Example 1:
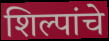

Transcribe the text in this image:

शिल्पांचे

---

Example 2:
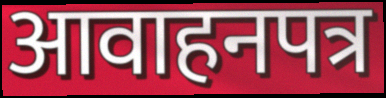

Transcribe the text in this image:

आवाहनपत्र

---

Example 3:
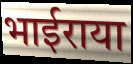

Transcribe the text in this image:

भाईराया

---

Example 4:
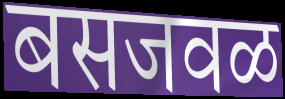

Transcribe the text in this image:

बसजवळ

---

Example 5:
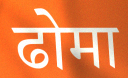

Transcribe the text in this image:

ढोमा